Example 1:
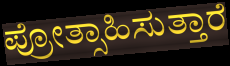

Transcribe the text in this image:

ಪ್ರೋತ್ಸಾಹಿಸುತ್ತಾರೆ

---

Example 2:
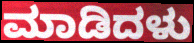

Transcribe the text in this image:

ಮಾಡಿದಳು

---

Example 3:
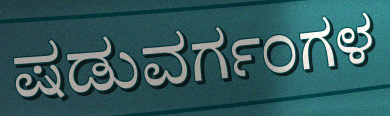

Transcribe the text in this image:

ಷಡುವರ್ಗಂಗಳ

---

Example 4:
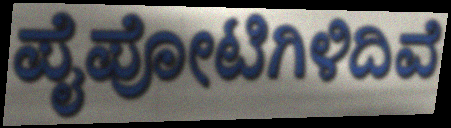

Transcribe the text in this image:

ಪೈಪೋಟಿಗಿಳಿದಿವೆ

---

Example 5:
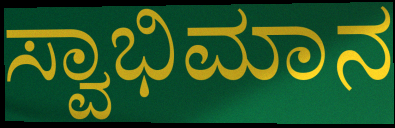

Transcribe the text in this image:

ಸ್ವಾಭಿಮಾನ